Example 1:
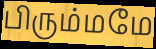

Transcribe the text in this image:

பிரும்மமே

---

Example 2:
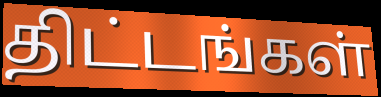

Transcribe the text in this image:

திட்டங்கள்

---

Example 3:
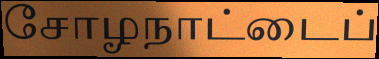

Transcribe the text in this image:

சோழநாட்டைப்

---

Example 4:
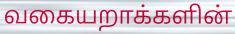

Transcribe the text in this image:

வகையறாக்களின்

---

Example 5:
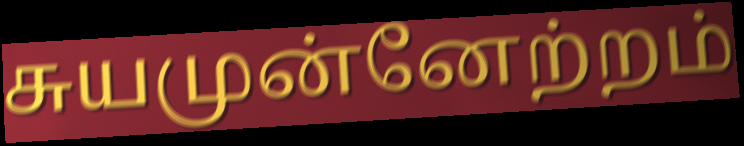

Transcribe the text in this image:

சுயமுன்னேற்றம்